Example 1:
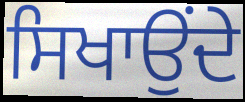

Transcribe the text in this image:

ਸਿਖਾਉਂਦੇ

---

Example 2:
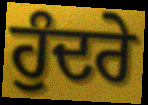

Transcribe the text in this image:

ਹੁੰਦਰੇ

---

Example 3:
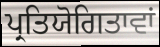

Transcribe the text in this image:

ਪ੍ਰਤਿਯੋਗਿਤਾਵਾਂ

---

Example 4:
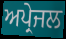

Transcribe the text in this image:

ਅਪ੍ਰੇਜਲ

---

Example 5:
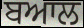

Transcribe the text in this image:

ਬਆਲ